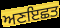
ਅਣਇਛਤ